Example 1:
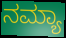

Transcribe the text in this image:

ನಮ್ಯಾ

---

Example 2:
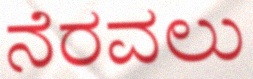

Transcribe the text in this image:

ನೆರವಲು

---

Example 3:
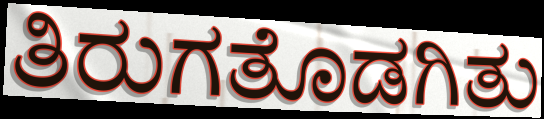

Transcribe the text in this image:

ತಿರುಗತೊಡಗಿತು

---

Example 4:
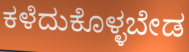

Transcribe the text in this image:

ಕಳೆದುಕೊಳ್ಳಬೇಡ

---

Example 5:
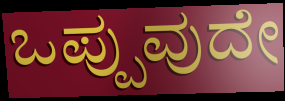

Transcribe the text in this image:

ಒಪ್ಪುವುದೇ